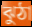
ঝুঠা